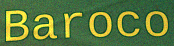
Baroco